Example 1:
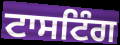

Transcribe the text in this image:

ਟਾਸਟਿੰਗ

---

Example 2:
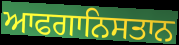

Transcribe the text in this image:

ਆਫਗਾਨਿਸਤਾਨ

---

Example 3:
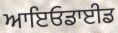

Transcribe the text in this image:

ਆਇਓਡਾਈਡ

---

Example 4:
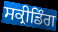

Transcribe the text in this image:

ਸਕ੍ਰੀਡਿੰਗ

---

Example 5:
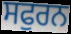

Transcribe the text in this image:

ਸਫੁਰਨ